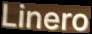
Linero